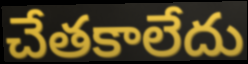
చేతకాలేదు